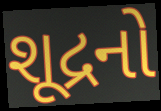
શૂદ્રનો